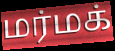
மர்மக்